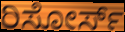
ರಿಸೋರ್ಸ್